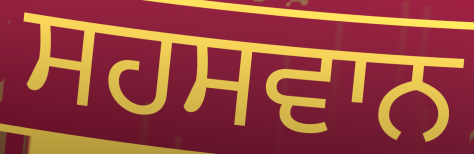
ਸਹਸਵਾਨ